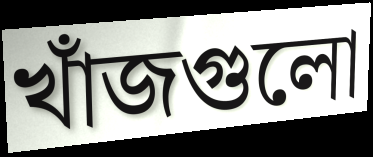
খাঁজগুলো